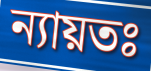
ন্যায়তঃ